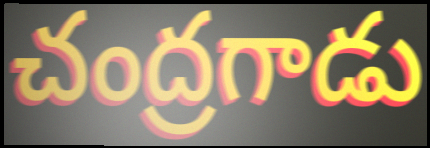
చంద్రగాడు